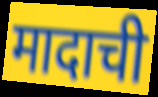
मादाची